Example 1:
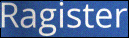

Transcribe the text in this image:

Ragister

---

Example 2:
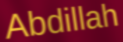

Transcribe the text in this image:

Abdillah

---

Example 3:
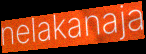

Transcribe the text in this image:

nelakanaja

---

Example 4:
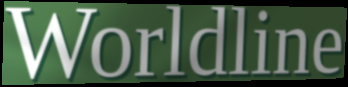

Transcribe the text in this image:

Worldline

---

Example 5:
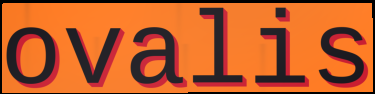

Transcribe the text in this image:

ovalis